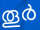
തൂർ